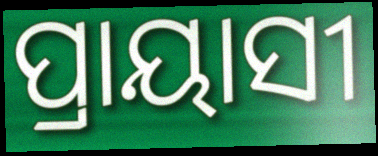
ପ୍ରାୟାସୀ